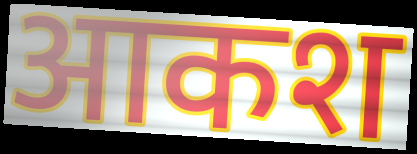
आकश